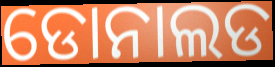
ଡୋନାଲଡ